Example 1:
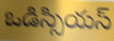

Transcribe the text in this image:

ఒడిస్సియస్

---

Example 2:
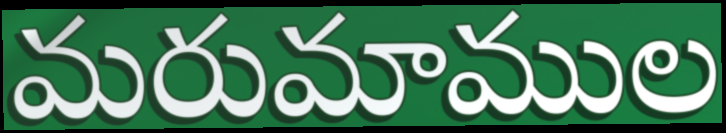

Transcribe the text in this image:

మరుమాముల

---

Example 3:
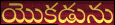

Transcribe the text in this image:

యొకడును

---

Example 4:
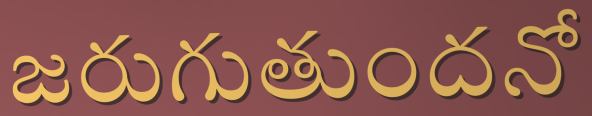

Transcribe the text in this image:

జరుగుతుందనో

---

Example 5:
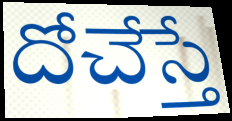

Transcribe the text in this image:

దోచేస్తే